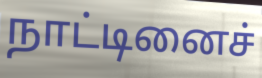
நாட்டினைச்